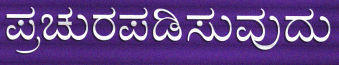
ಪ್ರಚುರಪಡಿಸುವುದು